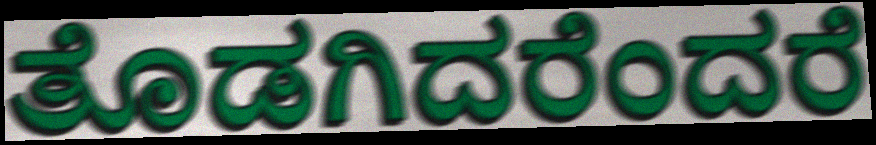
ತೊಡಗಿದರೆಂದರೆ